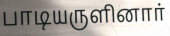
பாடியருளினார்